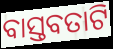
ବାସ୍ତବତାଟି